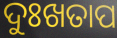
ଦୁଃଖତାପ